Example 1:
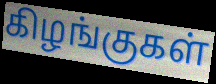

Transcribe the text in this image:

கிழங்குகள்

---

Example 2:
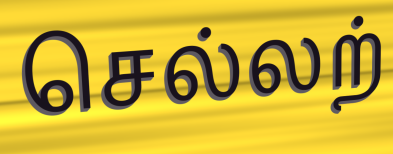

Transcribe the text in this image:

செல்லற்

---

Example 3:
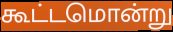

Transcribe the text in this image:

கூட்டமொன்று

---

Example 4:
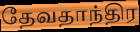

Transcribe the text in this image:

தேவதாந்திர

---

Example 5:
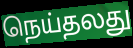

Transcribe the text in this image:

நெய்தலது